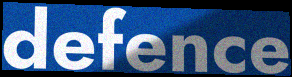
defence